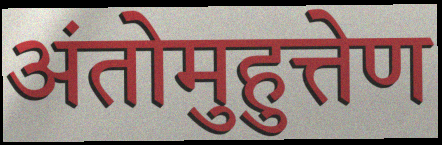
अंतोमुहुत्तेण